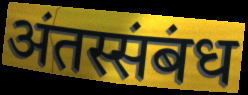
अंतस्संबंध